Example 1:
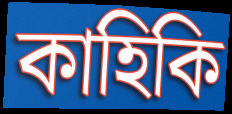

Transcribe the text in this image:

কাহিকি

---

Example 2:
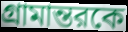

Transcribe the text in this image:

গ্রামান্তরকে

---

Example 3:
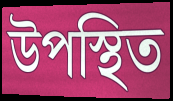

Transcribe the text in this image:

উপস্থিত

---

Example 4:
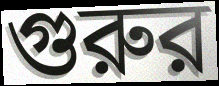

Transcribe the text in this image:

গুরুর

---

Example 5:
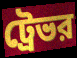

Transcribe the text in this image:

ট্রেভর